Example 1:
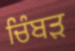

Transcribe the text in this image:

ਚਿੰਬੜ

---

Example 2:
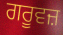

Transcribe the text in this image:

ਗਰੂਵਜ਼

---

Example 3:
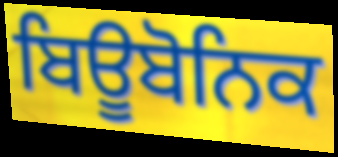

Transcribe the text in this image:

ਬਿਊਬੋਨਿਕ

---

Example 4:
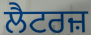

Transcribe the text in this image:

ਲੈਟਰਜ਼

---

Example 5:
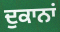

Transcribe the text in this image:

ਦੁਕਾਨਾਂ